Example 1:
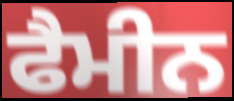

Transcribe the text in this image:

ਫੈਮੀਨ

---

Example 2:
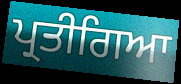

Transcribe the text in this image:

ਪ੍ਰਤੀਗਿਆ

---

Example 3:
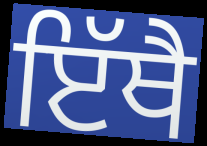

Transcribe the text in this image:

ਇੱਥੈ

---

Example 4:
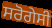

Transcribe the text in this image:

ਸਰੋਗੇਸੀ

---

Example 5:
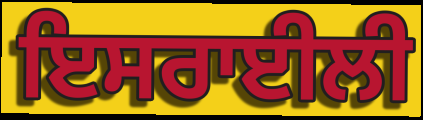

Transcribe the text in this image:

ਇਸਰਾਈਲੀ